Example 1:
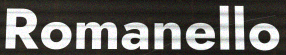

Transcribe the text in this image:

Romanello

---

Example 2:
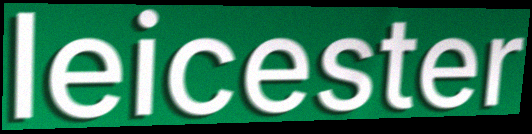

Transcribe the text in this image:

leicester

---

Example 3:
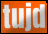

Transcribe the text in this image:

tujd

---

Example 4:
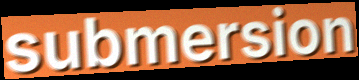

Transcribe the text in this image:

submersion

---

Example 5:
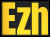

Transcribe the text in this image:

Ezh